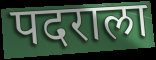
पदराला